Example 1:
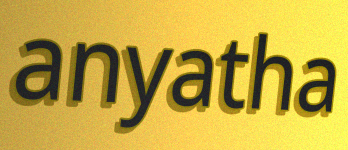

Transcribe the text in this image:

anyatha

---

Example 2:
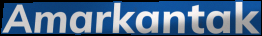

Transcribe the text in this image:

Amarkantak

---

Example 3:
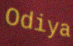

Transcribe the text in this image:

Odiya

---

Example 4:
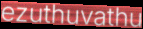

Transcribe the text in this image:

ezuthuvathu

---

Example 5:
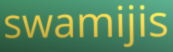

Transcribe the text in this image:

swamijis